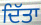
ਦਿੱਤਾ